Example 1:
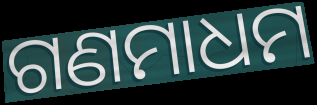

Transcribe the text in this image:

ଗଣମାଧମ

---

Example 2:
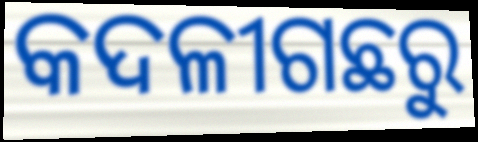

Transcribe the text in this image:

କଦଳୀଗଛରୁ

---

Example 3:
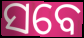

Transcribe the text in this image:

ସବେ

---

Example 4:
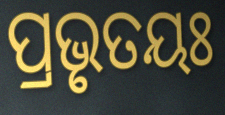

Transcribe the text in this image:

ପ୍ରଭୃତୟଃ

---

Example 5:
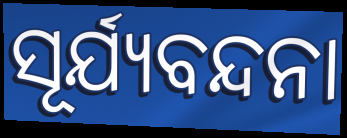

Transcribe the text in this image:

ସୂର୍ଯ୍ୟବନ୍ଦନା